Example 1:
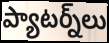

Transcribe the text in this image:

ప్యాటర్న్‌లు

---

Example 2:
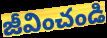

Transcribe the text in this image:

జీవించండి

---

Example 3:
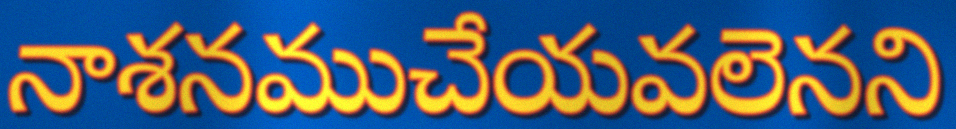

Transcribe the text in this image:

నాశనముచేయవలెనని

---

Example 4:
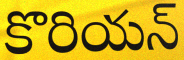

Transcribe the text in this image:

కొరియన్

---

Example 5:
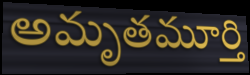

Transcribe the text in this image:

అమృతమూర్తి